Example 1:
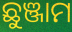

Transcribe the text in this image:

ଛୁଞ୍ଜାମ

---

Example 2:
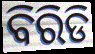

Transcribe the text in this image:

ବିରିଡି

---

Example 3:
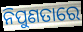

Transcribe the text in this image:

ନିପୁଣତାରେ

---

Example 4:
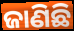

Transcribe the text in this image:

ଜାଣିଛି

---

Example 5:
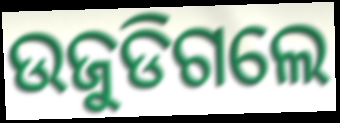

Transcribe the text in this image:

ଉଜୁଡିଗଲେ